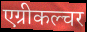
एग्रीकल्चर